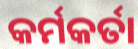
କର୍ମକର୍ତା